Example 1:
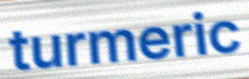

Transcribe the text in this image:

turmeric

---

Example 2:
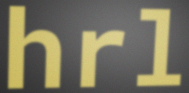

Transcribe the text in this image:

hrl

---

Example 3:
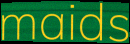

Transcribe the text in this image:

maids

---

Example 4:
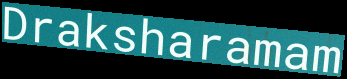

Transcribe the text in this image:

Draksharamam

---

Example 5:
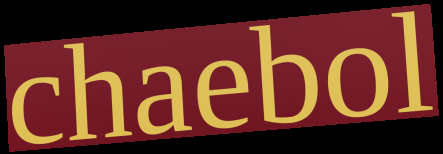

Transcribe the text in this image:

chaebol